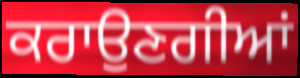
ਕਰਾਉਣਗੀਆਂ